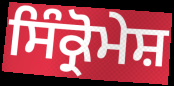
ਸਿੰਕ੍ਰੋਮੇਸ਼